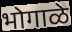
भोगाळे